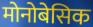
मोनोबेसिक